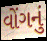
વોંગનું